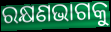
ରକ୍ଷଣଭାଗକୁ